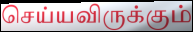
செய்யவிருக்கும்